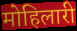
मोहिलारी